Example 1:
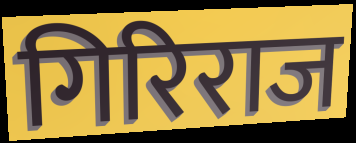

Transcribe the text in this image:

गिरिराज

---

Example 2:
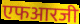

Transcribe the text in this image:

एफआरजी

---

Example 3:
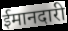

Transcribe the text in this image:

ईमानदारी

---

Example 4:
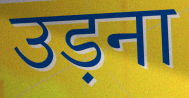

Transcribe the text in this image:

उड़ना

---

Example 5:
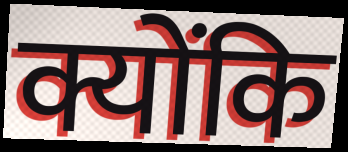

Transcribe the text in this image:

क्योंकि